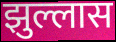
झुल्लास